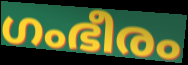
ഗംഭീരം